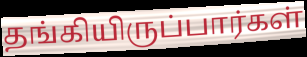
தங்கியிருப்பார்கள்